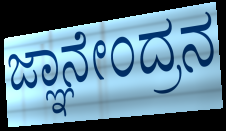
ಜ್ಞಾನೇಂದ್ರನ